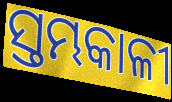
ସ୍ତମ୍ଭକାଳୀ